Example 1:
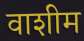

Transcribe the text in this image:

वाशीम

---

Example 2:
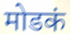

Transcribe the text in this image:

मोडकं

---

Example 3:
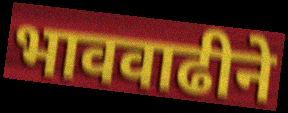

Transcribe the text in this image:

भाववाढीने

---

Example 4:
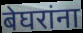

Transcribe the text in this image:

बेघरांना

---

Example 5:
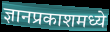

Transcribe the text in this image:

ज्ञानप्रकाशमध्ये